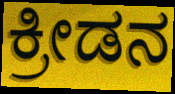
ಕ್ರೀಡನ